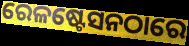
ରେଳଷ୍ଟେସନଠାରେ